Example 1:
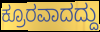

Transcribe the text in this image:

ಕ್ರೂರವಾದದ್ದು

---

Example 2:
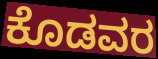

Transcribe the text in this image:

ಕೊಡವರ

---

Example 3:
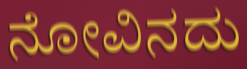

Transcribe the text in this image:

ನೋವಿನದು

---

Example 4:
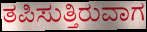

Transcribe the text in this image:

ತಪಿಸುತ್ತಿರುವಾಗ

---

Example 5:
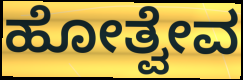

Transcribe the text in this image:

ಹೋತ್ವೇವ